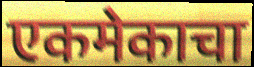
एकमेकाचा